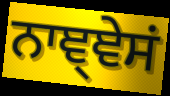
ਨਾਞ੍ਞੇਸਂ